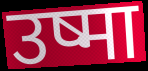
उष्मा